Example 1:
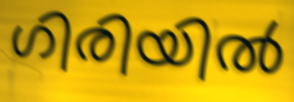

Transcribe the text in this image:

ഗിരിയിൽ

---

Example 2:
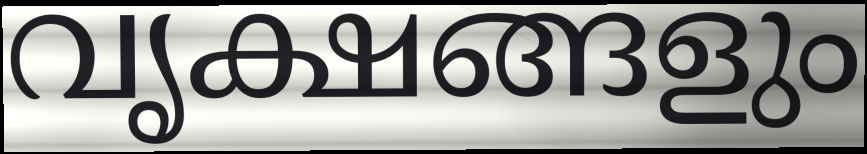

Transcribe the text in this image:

വൃക്ഷങ്ങളും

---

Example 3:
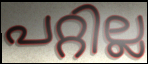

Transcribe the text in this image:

പറ്റില്ല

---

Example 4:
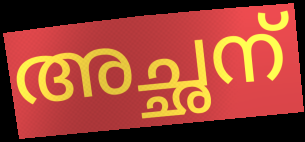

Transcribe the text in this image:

അച്ഛന്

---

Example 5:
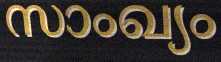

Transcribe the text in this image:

സാംഖ്യം